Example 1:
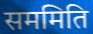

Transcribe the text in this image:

सममिति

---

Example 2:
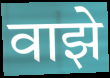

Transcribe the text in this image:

वाझे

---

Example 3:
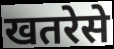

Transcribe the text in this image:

खतरेसे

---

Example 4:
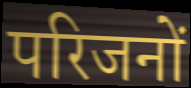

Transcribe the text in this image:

परिजनों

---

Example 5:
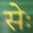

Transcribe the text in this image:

सेः